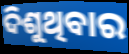
ଦିଶୁଥିବାର